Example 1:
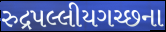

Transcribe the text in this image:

રુદ્રપલ્લીયગચ્છના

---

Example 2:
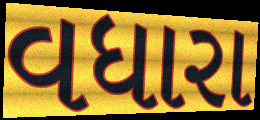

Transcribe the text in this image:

વધારા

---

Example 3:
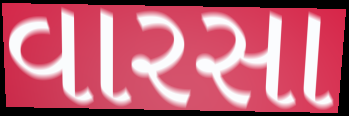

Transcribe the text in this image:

વારસા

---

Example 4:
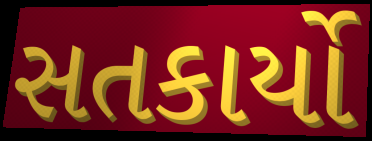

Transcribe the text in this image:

સતકાર્યો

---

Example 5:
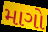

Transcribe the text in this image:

માગો